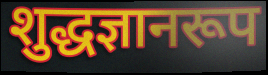
शुद्धज्ञानरूप